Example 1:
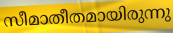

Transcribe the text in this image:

സീമാതീതമായിരുന്നു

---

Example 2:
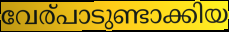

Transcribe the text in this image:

വേര്പാടുണ്ടാക്കിയ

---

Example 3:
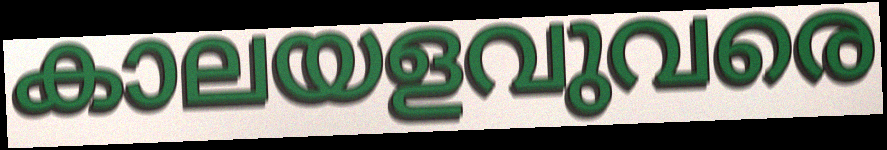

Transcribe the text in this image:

കാലയളവുവരെ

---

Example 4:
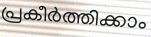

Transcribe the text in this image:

പ്രകീർത്തിക്കാം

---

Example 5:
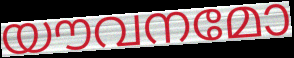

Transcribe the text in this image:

യൗവനമോ